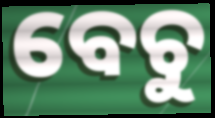
ବେଚୁ